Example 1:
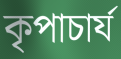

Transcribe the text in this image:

কৃপাচার্য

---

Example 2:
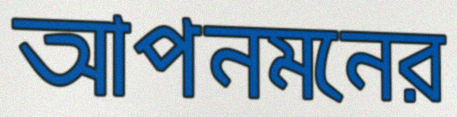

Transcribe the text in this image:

আপনমনের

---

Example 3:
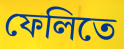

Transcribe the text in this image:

ফেলিতে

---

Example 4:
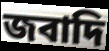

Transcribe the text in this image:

জবাদি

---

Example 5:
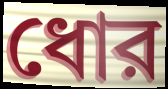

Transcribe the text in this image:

ধোর